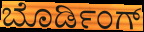
ಬೊರ್ಡಿಂಗ್